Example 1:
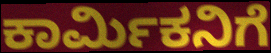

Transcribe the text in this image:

ಕಾರ್ಮಿಕನಿಗೆ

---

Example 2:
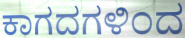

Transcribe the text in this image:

ಕಾಗದಗಳಿಂದ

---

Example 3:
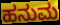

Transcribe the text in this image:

ಹನುಮ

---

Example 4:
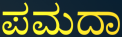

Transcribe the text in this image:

ಪಮದಾ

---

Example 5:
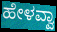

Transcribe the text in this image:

ಹೇಳವ್ವಾ